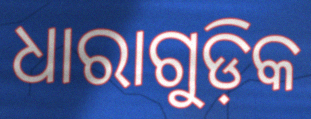
ଧାରାଗୁଡ଼ିକ